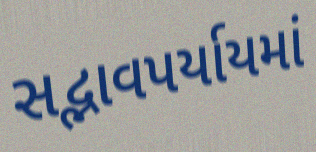
સદ્ભાવપર્યાયમાં